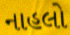
નાહલો